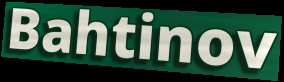
Bahtinov